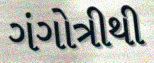
ગંગોત્રીથી